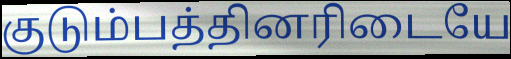
குடும்பத்தினரிடையே